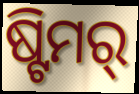
ଷ୍ଟିମର୍